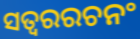
ସତ୍ୱରରଚନଂ